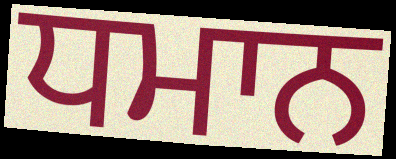
ਧਮਾਨ